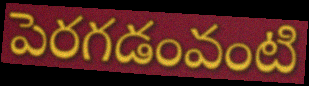
పెరగడంవంటి